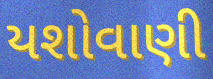
યશોવાણી